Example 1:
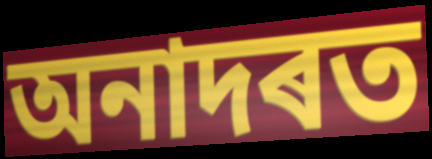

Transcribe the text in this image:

অনাদৰত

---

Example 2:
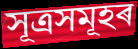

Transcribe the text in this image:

সূত্ৰসমূহৰ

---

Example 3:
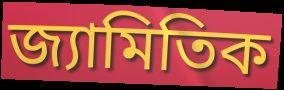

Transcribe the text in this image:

জ্যামিতিক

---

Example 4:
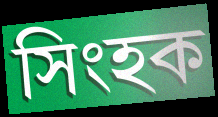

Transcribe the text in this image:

সিংহক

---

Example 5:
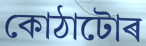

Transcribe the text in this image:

কোঠাটোৰ